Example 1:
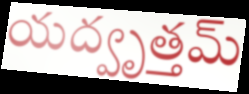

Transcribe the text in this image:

యద్వృత్తమ్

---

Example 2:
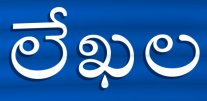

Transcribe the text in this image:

లేఖల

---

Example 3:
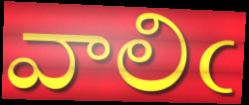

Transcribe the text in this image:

వాలిఁ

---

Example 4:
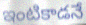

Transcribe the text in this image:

ఇంటికాడనే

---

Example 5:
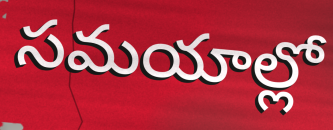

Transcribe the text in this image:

సమయాల్లో